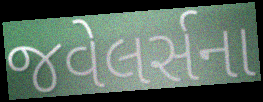
જવેલર્સના